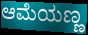
ಆಮೆಯಣ್ಣ